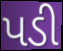
પડી